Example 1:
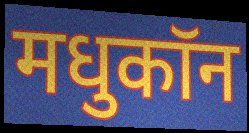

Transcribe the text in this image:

मधुकॉन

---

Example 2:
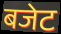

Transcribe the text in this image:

बजेट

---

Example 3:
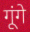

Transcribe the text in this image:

गूंगे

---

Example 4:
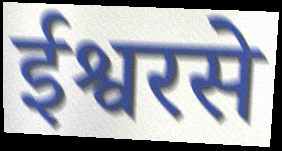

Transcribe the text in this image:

ईश्वरसे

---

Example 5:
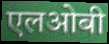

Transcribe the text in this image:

एलओबी